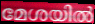
മേശയിൽ